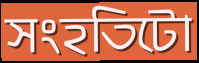
সংহতিটো